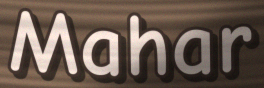
Mahar